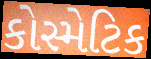
કોસ્મેટિક